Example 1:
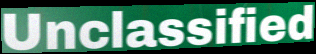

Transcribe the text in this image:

Unclassified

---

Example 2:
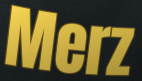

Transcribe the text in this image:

Merz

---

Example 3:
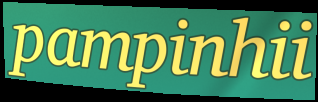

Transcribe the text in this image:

pampinhii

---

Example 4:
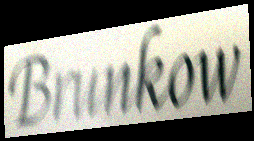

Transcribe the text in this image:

Brunkow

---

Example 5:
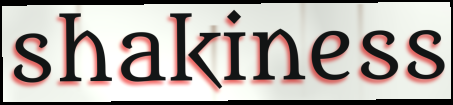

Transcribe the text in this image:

shakiness